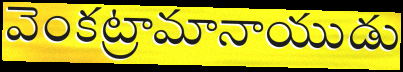
వెంకట్రామానాయుడు